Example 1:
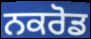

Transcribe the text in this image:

ਨਕਰੋਡ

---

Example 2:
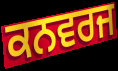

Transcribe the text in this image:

ਕਨਵਰਜ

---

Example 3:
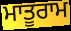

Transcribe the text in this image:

ਮਾਤੂਰਾਮ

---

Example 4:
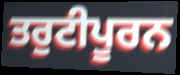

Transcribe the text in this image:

ਤਰੁਟੀਪੂਰਨ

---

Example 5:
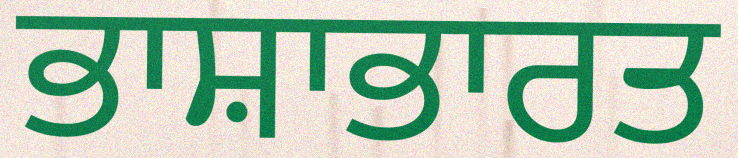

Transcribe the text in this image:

ਭਾਸ਼ਾਭਾਰਤ